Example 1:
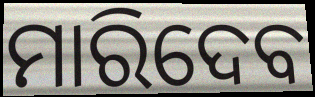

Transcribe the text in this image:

ମାରିଦେବ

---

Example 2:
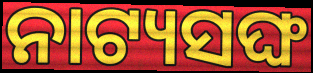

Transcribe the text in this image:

ନାଟ୍ୟସଙ୍ଘ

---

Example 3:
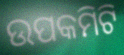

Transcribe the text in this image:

ଉପକମିଟି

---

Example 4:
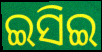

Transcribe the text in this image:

ଇସିଇ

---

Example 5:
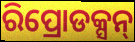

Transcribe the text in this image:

ରିପ୍ରୋଡକ୍ସନ୍